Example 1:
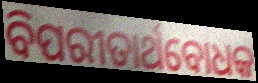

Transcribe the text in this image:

ବିପରୀତାର୍ଥବୋଧକ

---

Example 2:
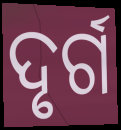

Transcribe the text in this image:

ଦୃର୍ଗ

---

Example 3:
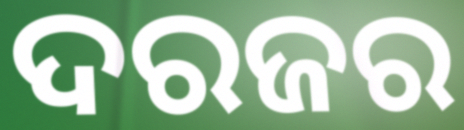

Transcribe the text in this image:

ଦରଜର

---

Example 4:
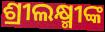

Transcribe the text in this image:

ଶ୍ରୀଲକ୍ଷ୍ମୀଙ୍କ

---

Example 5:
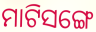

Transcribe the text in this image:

ମାଟିସଙ୍ଗେ